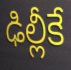
ఢిల్లీకే